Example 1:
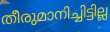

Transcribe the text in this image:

തീരുമാനിച്ചിട്ടില്ല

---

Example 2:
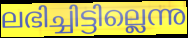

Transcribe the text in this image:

ലഭിച്ചിട്ടില്ലെന്നു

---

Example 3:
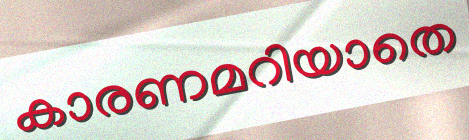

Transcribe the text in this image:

കാരണമറിയാതെ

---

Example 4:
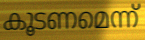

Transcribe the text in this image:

കൂടണമെന്ന്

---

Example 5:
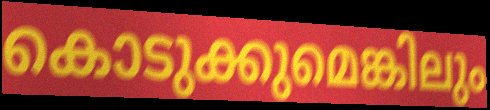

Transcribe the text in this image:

കൊടുക്കുമെങ്കിലും